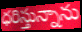
ధరిస్తున్నాను